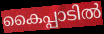
കൈപ്പാടിൽ